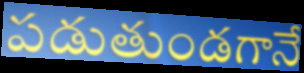
పడుతుండగానే